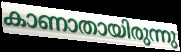
കാണാതായിരുന്നു